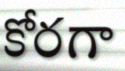
కోరగా